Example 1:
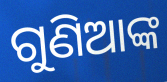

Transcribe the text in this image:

ଗୁଣିଆଙ୍କ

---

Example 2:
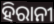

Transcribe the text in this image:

ହିରାନୀ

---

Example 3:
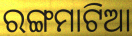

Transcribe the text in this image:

ରଙ୍ଗମାଟିଆ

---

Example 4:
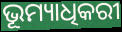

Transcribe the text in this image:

ଭୂମ୍ୟାଧିକରୀ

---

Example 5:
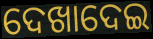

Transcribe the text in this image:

ଦେଖାଦେଇ